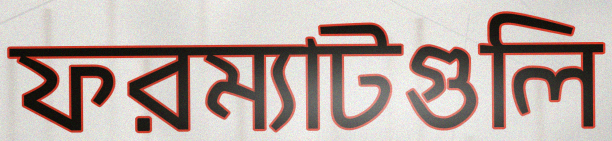
ফরম্যাটগুলি